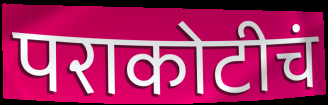
पराकोटीचं